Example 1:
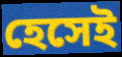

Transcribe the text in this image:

হেসেই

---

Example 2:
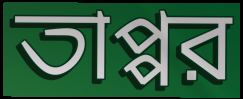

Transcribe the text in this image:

তাপ্পর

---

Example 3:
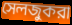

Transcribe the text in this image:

সেলজুকরা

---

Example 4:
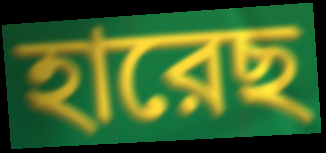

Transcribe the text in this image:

হারেছ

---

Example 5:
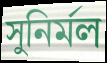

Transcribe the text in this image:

সুনির্মল